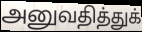
அனுவதித்துக்